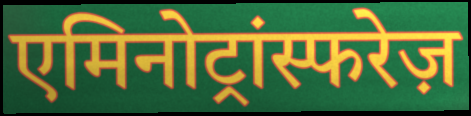
एमिनोट्रांस्फरेज़